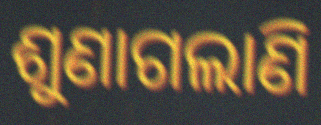
ଶୁଣାଗଲାଣି